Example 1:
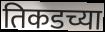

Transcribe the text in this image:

तिकडच्या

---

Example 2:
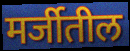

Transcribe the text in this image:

मर्जीतील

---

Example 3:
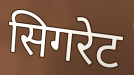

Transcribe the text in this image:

सिगरेट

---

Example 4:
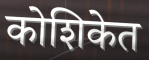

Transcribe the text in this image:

कोशिकेत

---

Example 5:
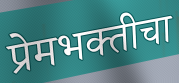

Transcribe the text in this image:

प्रेमभक्तीचा